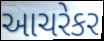
આચરેકર